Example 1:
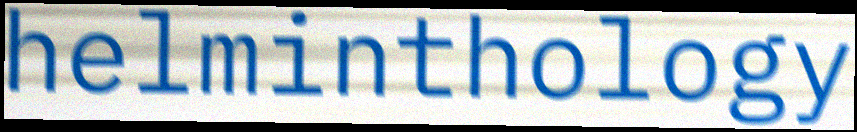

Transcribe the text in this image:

helminthology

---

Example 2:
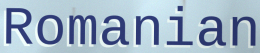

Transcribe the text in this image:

Romanian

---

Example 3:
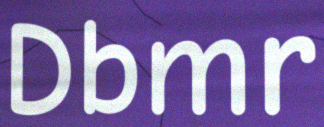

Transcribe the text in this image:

Dbmr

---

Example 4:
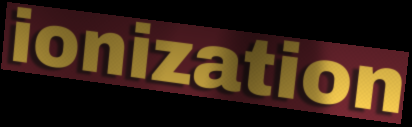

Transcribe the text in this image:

ionization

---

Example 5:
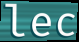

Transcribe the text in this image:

lec